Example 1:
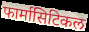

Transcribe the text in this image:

फार्मासिटिकल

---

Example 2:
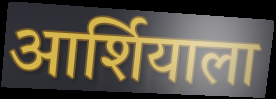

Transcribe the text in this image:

आर्शियाला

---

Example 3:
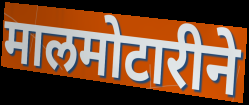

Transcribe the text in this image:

मालमोटारीने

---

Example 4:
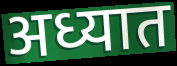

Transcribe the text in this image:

अध्यात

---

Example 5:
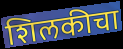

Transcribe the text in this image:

शिलकीचा